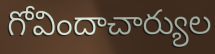
గోవిందాచార్యుల